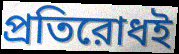
প্রতিরোধই